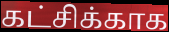
கட்சிக்காக